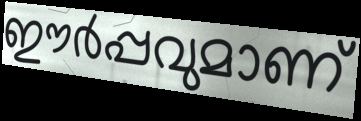
ഈർപ്പവുമാണ്